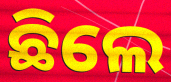
ଛିଲେ